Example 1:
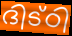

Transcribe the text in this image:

ദിട്ഠി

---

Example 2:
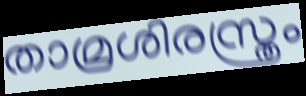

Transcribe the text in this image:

താമ്രശിരസ്ത്രം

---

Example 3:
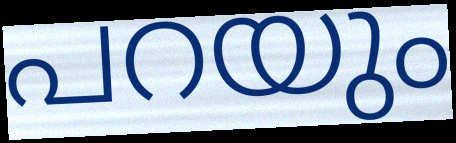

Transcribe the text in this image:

പറയും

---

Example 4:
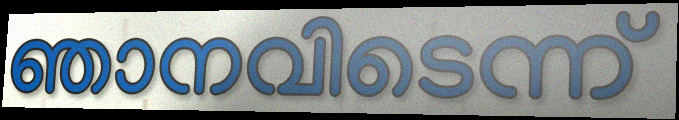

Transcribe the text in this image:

ഞാനവിടെന്ന്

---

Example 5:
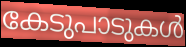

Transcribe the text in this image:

കേടുപാടുകൾ